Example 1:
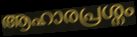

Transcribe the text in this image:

ആഹാരപ്രശ്നം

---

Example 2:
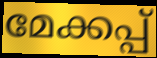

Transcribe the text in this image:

മേക്കപ്പ്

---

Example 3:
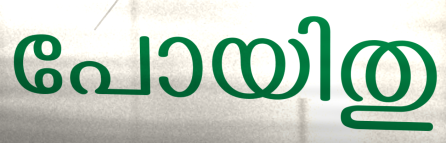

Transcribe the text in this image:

പോയിതു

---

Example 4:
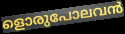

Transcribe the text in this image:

ളൊരുപോലവൻ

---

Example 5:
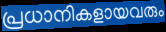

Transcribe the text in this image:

പ്രധാനികളായവരും